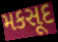
મકસૂદ